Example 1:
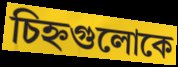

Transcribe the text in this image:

চিহ্নগুলোকে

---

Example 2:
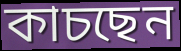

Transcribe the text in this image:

কাচছেন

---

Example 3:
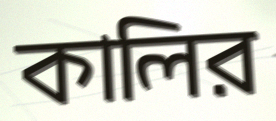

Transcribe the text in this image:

কালির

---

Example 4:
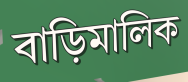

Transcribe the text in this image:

বাড়িমালিক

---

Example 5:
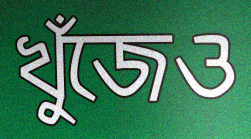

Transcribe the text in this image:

খুঁজেও